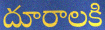
దూరాలకి